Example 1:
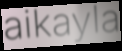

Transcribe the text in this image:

aikayla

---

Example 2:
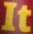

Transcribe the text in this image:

It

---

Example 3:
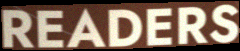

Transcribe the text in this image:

READERS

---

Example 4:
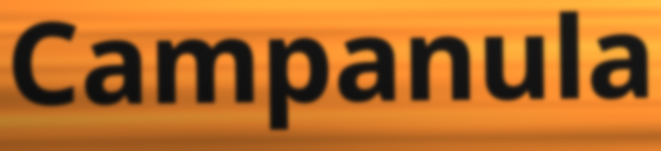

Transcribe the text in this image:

Campanula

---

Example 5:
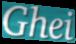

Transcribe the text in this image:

Ghei